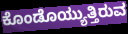
ಕೊಂಡೊಯ್ಯುತ್ತಿರುವ